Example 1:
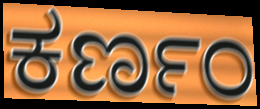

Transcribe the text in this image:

ಕರ್ಣಂ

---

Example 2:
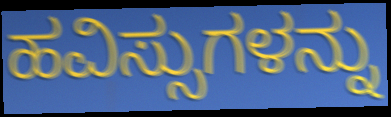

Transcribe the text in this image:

ಹವಿಸ್ಸುಗಳನ್ನು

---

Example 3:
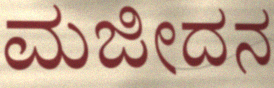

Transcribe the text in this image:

ಮಜೀದನ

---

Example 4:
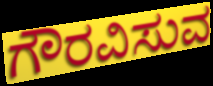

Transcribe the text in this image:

ಗೌರವಿಸುವ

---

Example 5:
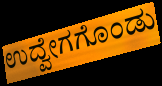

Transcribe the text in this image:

ಉದ್ವೇಗಗೊಂಡು